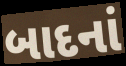
બાદનાં